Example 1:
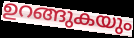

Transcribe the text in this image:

ഉറങ്ങുകയും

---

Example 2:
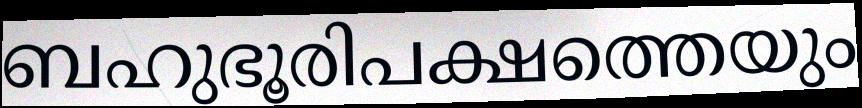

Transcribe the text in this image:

ബഹുഭൂരിപക്ഷത്തെയും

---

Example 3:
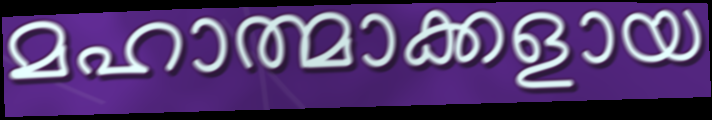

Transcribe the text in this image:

മഹാത്മാക്കളായ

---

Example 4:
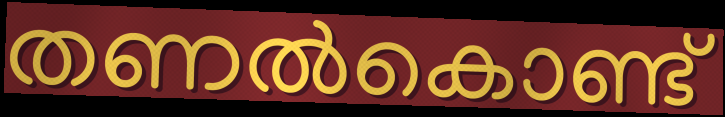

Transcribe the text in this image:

തണൽകൊണ്ട്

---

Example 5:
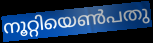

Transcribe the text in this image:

നൂറ്റിയെൺപതു